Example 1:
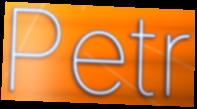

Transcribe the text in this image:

Petr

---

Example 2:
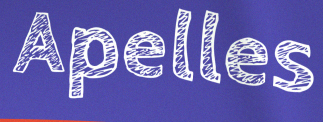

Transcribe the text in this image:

Apelles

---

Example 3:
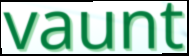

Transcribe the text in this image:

vaunt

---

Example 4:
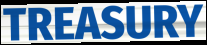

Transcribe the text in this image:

TREASURY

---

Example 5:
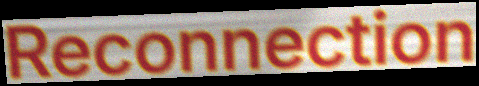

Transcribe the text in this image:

Reconnection